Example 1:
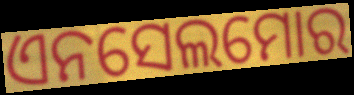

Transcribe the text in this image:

ଏନସେଲମୋର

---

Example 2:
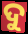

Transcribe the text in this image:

ଦୁ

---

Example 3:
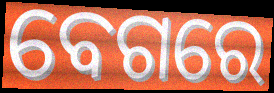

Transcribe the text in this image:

ବେଗରେ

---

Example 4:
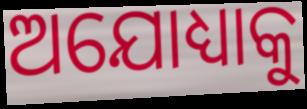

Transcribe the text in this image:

ଅଯୋଧ୍ୟାକୁ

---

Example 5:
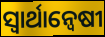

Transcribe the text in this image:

ସ୍ବାର୍ଥାନ୍ବେଷୀ